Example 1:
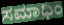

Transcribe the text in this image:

ಸಮಾಧಿಂ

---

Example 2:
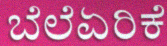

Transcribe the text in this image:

ಬೆಲೆಏರಿಕೆ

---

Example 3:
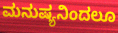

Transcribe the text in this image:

ಮನುಷ್ಯನಿಂದಲೂ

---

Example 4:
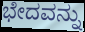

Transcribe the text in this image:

ಭೇದವನ್ನು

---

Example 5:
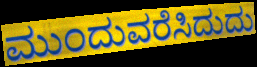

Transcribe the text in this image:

ಮುಂದುವರೆಸಿದುದು